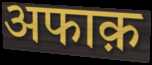
अफाक़